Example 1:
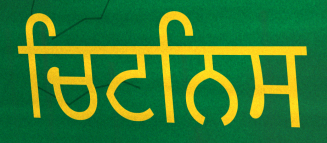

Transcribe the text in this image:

ਚਿਟਨਿਸ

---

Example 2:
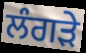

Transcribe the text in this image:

ਲੰਗੜੇ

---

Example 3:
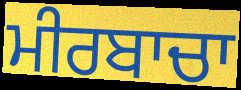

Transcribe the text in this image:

ਮੀਰਬਾਚਾ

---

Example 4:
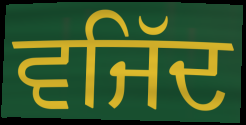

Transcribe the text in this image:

ਵਜਿੱਦ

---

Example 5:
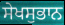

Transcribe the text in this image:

ਸੇਖਸੁਭਾਨ